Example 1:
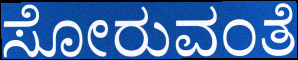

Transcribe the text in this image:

ಸೋರುವಂತೆ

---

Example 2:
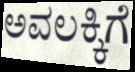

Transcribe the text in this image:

ಅವಲಕ್ಕಿಗೆ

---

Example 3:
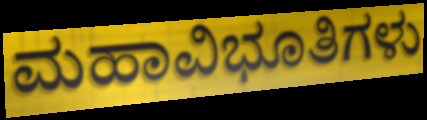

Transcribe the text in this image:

ಮಹಾವಿಭೂತಿಗಳು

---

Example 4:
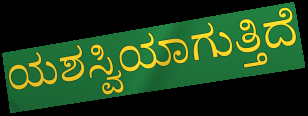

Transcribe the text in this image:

ಯಶಸ್ವಿಯಾಗುತ್ತಿದೆ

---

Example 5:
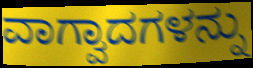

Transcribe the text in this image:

ವಾಗ್ವಾದಗಳನ್ನು